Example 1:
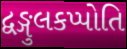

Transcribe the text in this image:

દ્વઙ્ગુલકપ્પોતિ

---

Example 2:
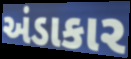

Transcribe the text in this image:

અંડાકાર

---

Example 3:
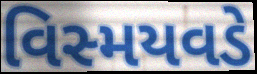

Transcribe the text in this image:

વિસ્મયવડે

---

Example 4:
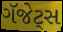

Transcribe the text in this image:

ગૅજેટ્સ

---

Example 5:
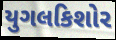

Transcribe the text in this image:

યુગલકિશોર